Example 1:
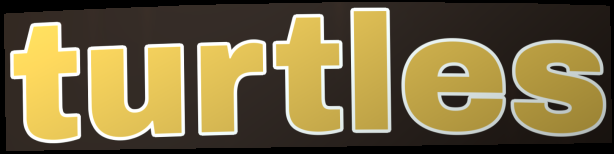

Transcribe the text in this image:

turtles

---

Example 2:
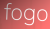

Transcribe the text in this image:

fogo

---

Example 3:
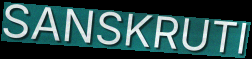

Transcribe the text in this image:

SANSKRUTI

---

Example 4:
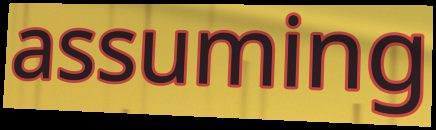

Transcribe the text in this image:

assuming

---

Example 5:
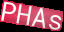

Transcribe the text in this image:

PHAs